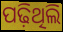
ପଢ଼ିଥିଲି